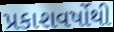
પ્રકાશવર્ષોથી